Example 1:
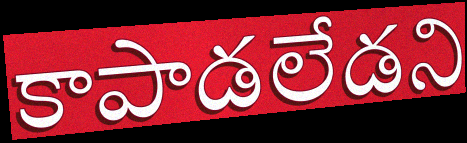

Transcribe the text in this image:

కాపాడలేడని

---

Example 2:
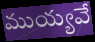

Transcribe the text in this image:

ముయ్యవే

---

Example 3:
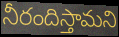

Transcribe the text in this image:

నీరందిస్తామని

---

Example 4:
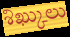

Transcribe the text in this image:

శిఖ్కులు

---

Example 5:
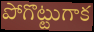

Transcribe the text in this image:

పోగొట్టుగాక